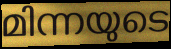
മിന്നയുടെ